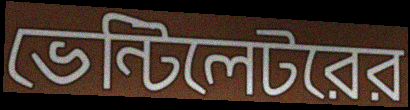
ভেন্টিলেটরের